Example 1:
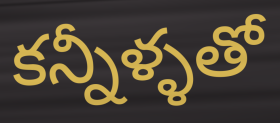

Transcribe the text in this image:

కన్నీళ్ళతో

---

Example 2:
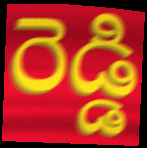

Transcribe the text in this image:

రెడ్డి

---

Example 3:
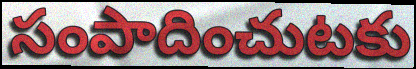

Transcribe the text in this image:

సంపాదించుటకు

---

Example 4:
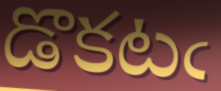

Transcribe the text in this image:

డొకటఁ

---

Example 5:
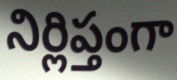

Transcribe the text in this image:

నిర్లిప్తంగా